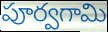
పూర్వగామి